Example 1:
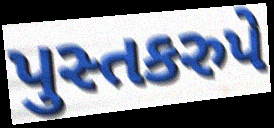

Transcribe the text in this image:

પુસ્તકરુપે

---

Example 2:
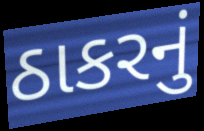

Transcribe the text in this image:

ઠાકરનું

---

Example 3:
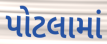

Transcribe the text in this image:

પોટલામાં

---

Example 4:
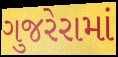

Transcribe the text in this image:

ગુજરેરામાં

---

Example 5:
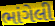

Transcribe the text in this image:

ભાંગેલી